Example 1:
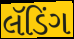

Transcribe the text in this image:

લૅડિંગ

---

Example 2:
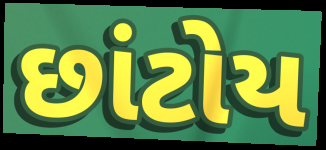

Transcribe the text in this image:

છાંટોય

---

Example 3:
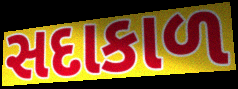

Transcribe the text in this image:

સદાકાળ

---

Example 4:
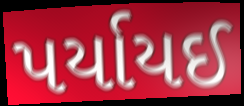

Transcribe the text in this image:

પર્યાયઈ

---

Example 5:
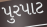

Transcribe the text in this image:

પુરપાટ